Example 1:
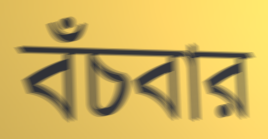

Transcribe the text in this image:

বঁচবার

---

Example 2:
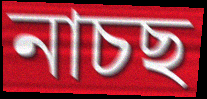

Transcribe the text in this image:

নাচছ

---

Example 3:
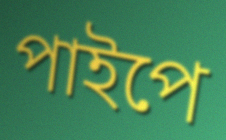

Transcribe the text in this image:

পাইপে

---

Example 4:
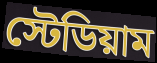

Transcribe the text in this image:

স্টেডিয়াম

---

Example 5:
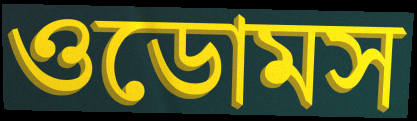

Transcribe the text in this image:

ওডোমস